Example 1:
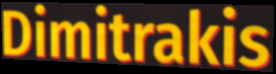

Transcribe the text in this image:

Dimitrakis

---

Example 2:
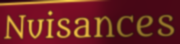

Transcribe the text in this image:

Nuisances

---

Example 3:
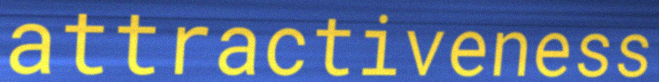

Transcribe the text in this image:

attractiveness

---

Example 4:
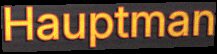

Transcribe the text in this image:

Hauptman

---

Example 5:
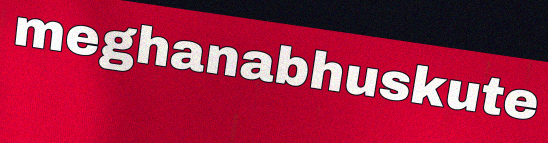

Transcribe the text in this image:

meghanabhuskute